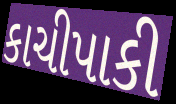
કાચીપાકી